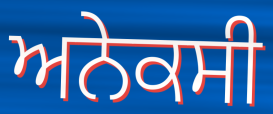
ਅਨੇਕਸੀ